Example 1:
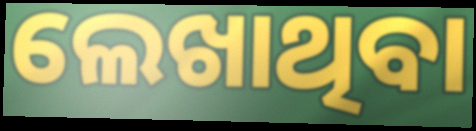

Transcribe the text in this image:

ଲେଖାଥିବା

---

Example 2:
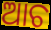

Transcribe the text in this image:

ଆଚ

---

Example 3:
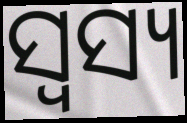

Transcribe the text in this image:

ସ୍ଵସ୍ୟ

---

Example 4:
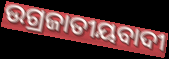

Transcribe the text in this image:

ଉଗ୍ରଜାତୀୟବାଦୀ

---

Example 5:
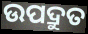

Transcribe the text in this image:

ଉପଦ୍ରୁତ